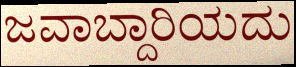
ಜವಾಬ್ದಾರಿಯದು